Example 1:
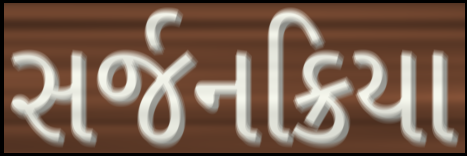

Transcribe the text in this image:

સર્જનક્રિયા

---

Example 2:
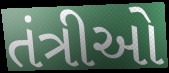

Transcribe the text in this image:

તંત્રીઓ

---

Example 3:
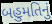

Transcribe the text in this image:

બહુમતિનું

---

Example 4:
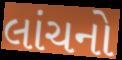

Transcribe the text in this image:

લાંચનો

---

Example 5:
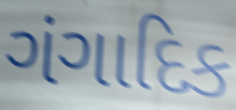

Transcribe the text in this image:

ગંગાદિક